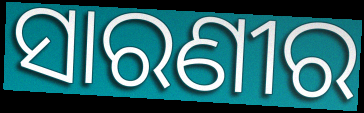
ସାରଣୀର